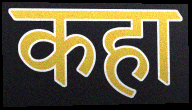
कहा